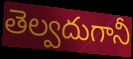
తెల్వదుగానీ